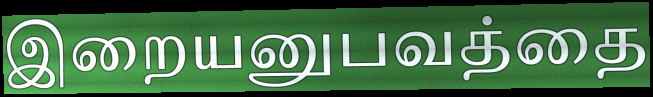
இறையனுபவத்தை